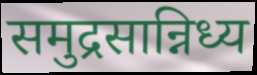
समुद्रसान्निध्य